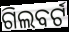
ଗିଲବର୍ଟ